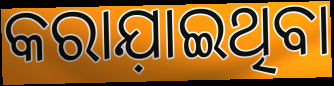
କରାଯ଼ାଇଥିବା